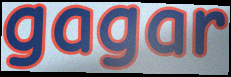
gagar